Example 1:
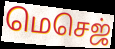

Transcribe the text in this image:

மெசெஜ்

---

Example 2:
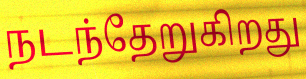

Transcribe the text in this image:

நடந்தேறுகிறது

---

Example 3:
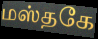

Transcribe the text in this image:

மஸ்தகே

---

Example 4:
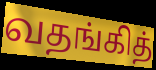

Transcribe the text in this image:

வதங்கித்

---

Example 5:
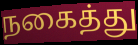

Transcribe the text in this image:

நகைத்து